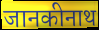
जानकीनाथ